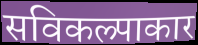
सविकल्पाकार